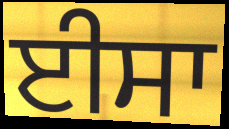
ਈਸਾ